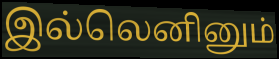
இல்லெனினும்